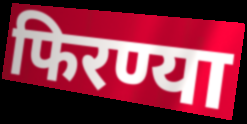
फिरण्या